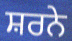
ਸ਼ਰਨੇ